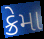
ક્રેમા